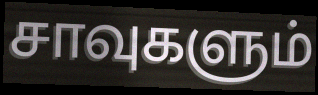
சாவுகளும்